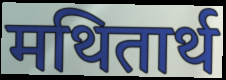
मथितार्थ